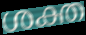
ശക്ത